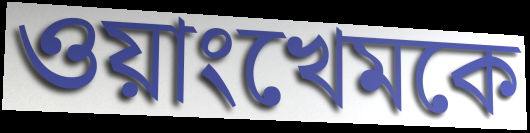
ওয়াংখেমকে